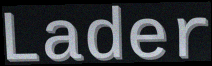
Lader